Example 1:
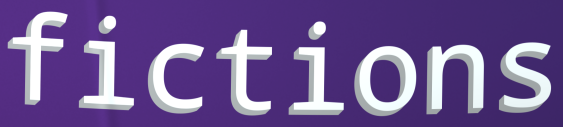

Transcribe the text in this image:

fictions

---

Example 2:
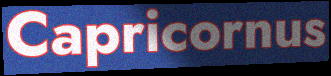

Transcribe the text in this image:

Capricornus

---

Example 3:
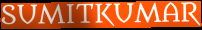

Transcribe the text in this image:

SUMITKUMAR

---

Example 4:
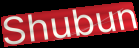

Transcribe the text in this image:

Shubun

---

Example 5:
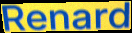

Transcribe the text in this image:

Renard